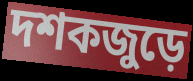
দশকজুড়ে